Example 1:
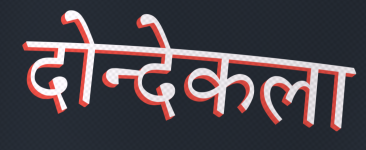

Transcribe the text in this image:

दोन्देकला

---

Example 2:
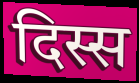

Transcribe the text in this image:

दिस्स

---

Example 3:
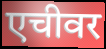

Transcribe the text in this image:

एचीवर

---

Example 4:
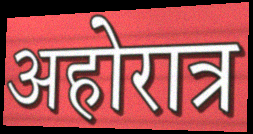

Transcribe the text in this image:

अहोरात्र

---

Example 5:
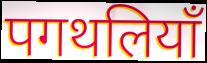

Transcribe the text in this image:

पगथलियाँ